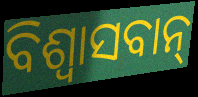
ବିଶ୍ଵାସବାନ୍